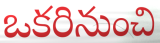
ఒకరినుంచి